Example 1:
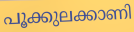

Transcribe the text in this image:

പൂക്കുലക്കാണി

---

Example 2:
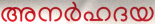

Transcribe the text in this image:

അനർഹദയ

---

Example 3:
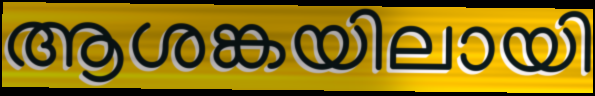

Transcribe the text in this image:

ആശങ്കയിലായി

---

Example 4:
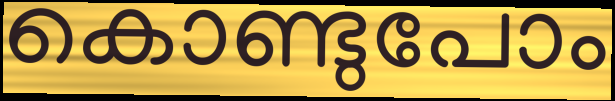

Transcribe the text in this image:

കൊണ്ടുപോം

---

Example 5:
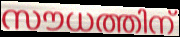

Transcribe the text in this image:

സൗധത്തിന്